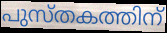
പുസ്തകത്തിന്